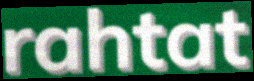
rahtat